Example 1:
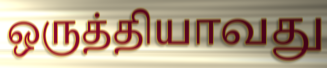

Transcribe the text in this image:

ஒருத்தியாவது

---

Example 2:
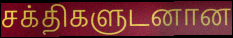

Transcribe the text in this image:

சக்திகளுடனான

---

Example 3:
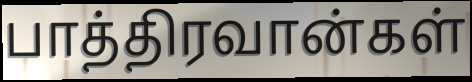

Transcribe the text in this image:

பாத்திரவான்கள்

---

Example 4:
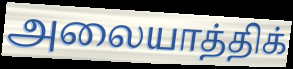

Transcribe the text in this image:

அலையாத்திக்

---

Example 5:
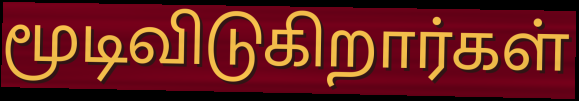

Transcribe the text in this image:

மூடிவிடுகிறார்கள்